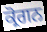
ਕ੍ਰੋਗਨ